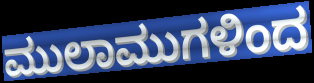
ಮುಲಾಮುಗಳಿಂದ